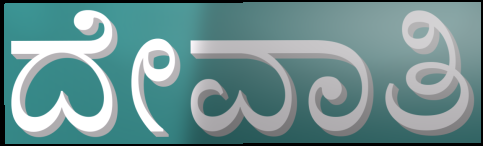
ದೇವಾತಿ